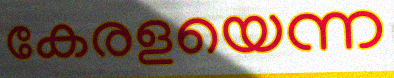
കേരളയെന്ന